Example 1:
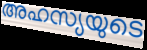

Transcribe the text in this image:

അഹസ്യയുടെ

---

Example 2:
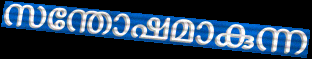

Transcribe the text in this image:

സന്തോഷമാകുന്ന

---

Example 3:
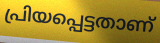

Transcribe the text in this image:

പ്രിയപ്പെട്ടതാണ്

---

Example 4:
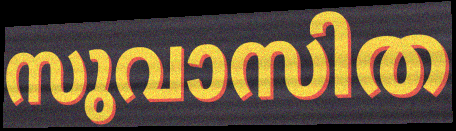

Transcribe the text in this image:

സുവാസിത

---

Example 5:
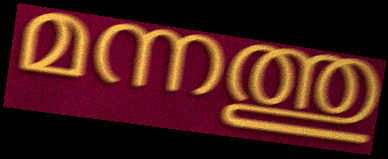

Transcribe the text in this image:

മന്നത്തു